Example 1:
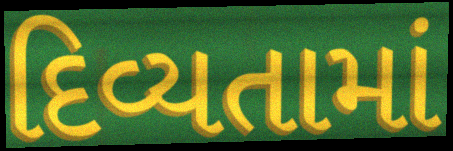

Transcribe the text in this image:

દિવ્યતામાં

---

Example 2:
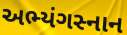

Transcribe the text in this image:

અભ્યંગસ્નાન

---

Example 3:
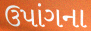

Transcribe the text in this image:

ઉપાંગના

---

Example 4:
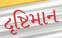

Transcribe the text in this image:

દૃષ્ટિમાન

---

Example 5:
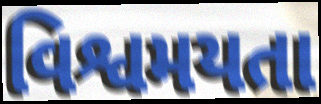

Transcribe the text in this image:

વિશ્વમયતા